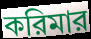
করিমার